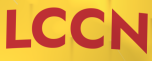
LCCN